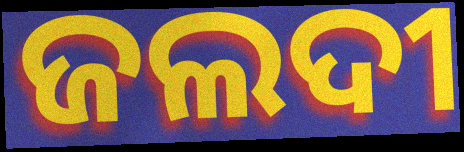
ଜଲଦୀ